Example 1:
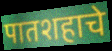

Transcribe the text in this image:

पातशहाचे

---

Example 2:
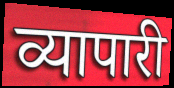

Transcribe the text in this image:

व्यापारी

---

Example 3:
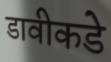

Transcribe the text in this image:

डावीकडे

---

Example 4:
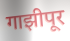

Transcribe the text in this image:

गाझीपूर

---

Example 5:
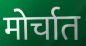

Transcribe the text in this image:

मोर्चात